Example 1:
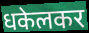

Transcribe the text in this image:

धकेलकर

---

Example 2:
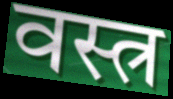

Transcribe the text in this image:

वस्‍त्र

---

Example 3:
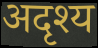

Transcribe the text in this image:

अदृश्य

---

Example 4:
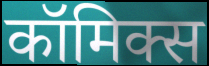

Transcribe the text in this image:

कॉमिक्स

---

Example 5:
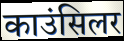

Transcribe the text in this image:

काउंसिलर